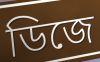
ডিজে